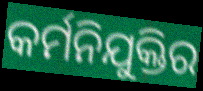
କର୍ମନିଯୁକ୍ତିର